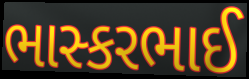
ભાસ્કરભાઈ